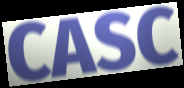
CASC